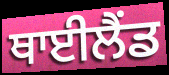
ਥਾਈਲੈਂਡ